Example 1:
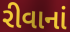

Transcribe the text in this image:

રીવાનાં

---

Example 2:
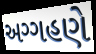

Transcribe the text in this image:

અગ્ગહણે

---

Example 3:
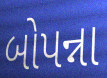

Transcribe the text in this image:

બોપન્ના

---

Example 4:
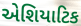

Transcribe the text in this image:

એશિયાટિક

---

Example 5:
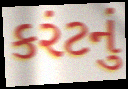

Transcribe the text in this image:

કરંટનું